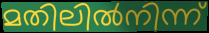
മതിലിൽനിന്ന്